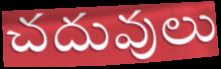
చదువులు